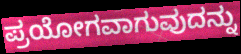
ಪ್ರಯೋಗವಾಗುವುದನ್ನು